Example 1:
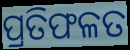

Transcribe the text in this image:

ପ୍ରତିଫଳତ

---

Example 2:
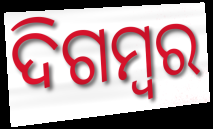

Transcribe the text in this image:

ଦିଗମ୍ୱର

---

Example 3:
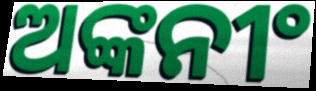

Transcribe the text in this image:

ଅଙ୍କନୀଂ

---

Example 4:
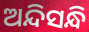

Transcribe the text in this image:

ଅନ୍ଦିସନ୍ଧି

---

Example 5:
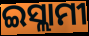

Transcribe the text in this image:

ଇସ୍ଲାମୀ